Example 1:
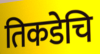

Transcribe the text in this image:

तिकडेचि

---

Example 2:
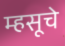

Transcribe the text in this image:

म्हसूचे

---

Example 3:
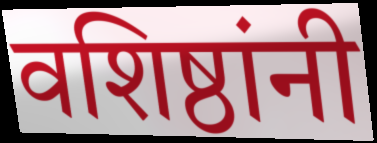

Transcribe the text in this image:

वशिष्ठांनी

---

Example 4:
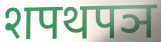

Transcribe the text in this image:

शपथपञ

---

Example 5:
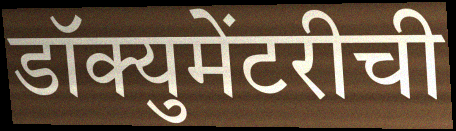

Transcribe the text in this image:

डॉक्युमेंटरीची